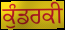
ਕੁੰਡਰਕੀ